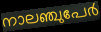
നാലഞ്ചുപേർ